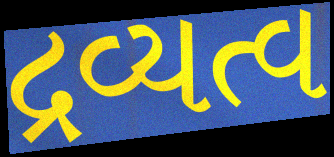
દ્રવ્યત્વ